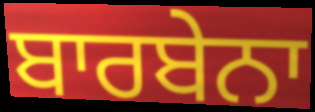
ਬਾਰਬੇਨਾ